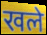
खले